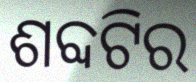
ଶବ୍ଦଟିର